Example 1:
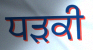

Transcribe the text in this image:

ਧੜਕੀ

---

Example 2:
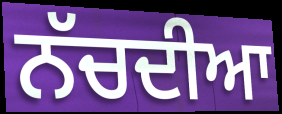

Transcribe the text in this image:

ਨੱਚਦੀਆ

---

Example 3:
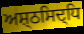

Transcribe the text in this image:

ਅਸ਼੍ਠਸਿਦ੍ਧਿ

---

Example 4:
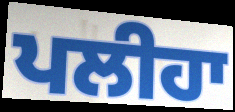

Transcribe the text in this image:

ਪਲੀਹਾ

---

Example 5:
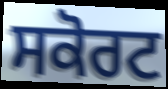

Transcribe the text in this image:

ਸਕੋਰਟ